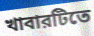
খাবারটিতে